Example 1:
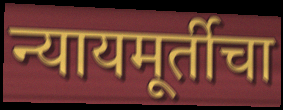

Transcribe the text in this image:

न्यायमूर्तीचा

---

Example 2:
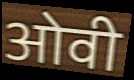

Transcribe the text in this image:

ओवी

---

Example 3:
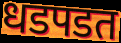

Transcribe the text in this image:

धडपडत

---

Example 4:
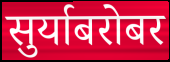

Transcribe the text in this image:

सुर्याबरोबर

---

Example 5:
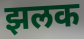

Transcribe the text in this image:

झलक